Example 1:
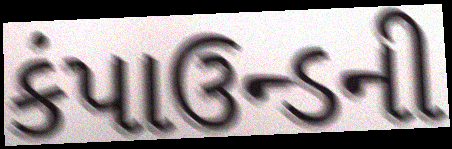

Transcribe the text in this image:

કંપાઉન્ડની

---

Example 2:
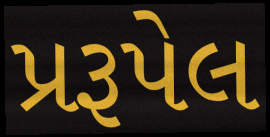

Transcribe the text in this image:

પ્રરૂપેલ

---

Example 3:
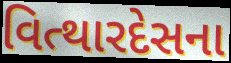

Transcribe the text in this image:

વિત્થારદેસના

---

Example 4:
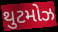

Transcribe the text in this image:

થુટમોઝ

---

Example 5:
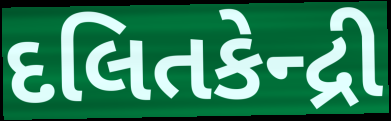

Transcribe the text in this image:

દલિતકેન્દ્રી